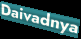
Daivadnya